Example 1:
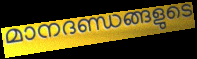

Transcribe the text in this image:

മാനദണ്ഡങ്ങളുടെ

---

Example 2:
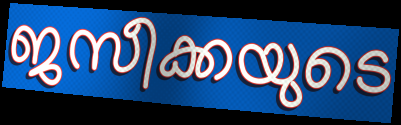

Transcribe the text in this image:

ജസീക്കയുടെ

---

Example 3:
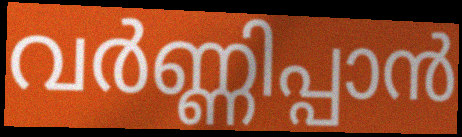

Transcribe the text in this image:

വർണ്ണിപ്പാൻ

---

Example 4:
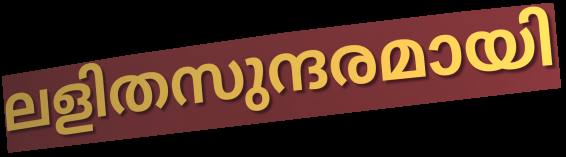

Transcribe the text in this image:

ലളിതസുന്ദരമായി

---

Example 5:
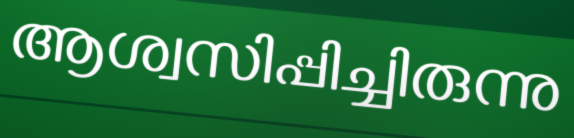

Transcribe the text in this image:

ആശ്വസിപ്പിച്ചിരുന്നു